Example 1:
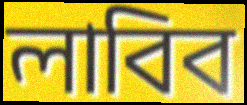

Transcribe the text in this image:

লাবিব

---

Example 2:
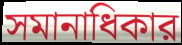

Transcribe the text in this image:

সমানাধিকার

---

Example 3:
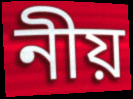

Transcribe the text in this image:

নীয়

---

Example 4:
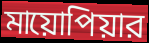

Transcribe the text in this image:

মায়োপিয়ার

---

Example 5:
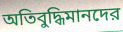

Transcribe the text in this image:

অতিবুদ্ধিমানদের